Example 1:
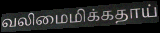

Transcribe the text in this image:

வலிமைமிக்கதாய்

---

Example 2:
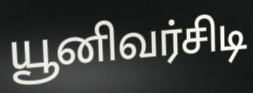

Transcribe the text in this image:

யூனிவர்சிடி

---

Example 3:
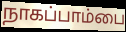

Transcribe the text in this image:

நாகப்பாம்பை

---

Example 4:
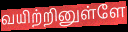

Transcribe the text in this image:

வயிற்றினுள்ளே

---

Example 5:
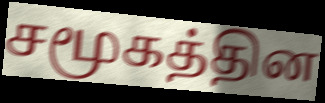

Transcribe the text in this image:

சமூகத்தின